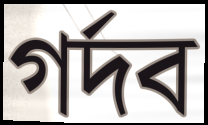
গর্দব